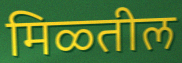
मिळ्तील